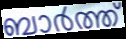
ബാർത്ത്